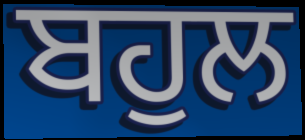
ਬਹੁਲ